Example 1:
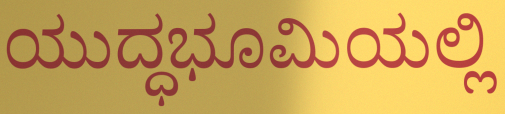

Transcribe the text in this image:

ಯುದ್ಧಭೂಮಿಯಲ್ಲಿ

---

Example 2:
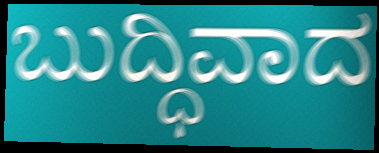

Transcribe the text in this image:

ಬುದ್ಧಿವಾದ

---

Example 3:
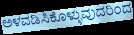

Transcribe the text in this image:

ಅಳವಡಿಸಿಕೊಳ್ಳುವುದರಿಂದ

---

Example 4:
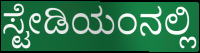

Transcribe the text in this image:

ಸ್ಟೇಡಿಯಂನಲ್ಲಿ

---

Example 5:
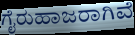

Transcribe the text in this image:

ಗೈರುಹಾಜರಾಗಿವೆ